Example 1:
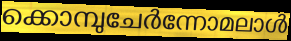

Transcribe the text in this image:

ക്കൊമ്പുചേർന്നോമലാൾ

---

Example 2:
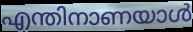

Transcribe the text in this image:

എന്തിനാണയാൾ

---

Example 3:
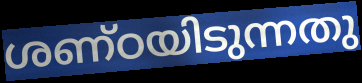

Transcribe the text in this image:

ശണ്ഠയിടുന്നതു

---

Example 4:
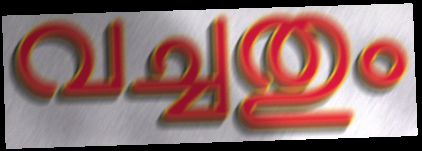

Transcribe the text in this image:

വച്ചതും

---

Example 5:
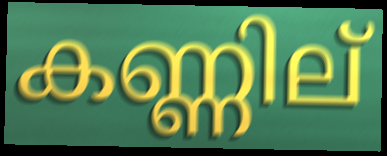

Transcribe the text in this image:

കണ്ണില്